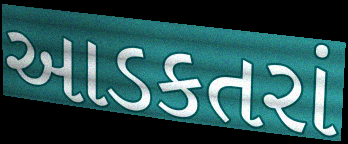
આડકતરાં